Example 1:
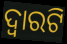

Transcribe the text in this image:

ଦ୍ୱାରଟି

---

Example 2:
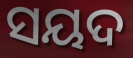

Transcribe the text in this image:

ସୟଦ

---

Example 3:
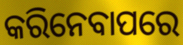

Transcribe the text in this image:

କରିନେବାପରେ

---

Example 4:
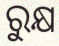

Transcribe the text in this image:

ରୁକ୍ଷ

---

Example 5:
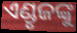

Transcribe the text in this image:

ଏଣ୍ଡୃଜଙ୍କୁ